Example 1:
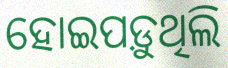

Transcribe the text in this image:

ହୋଇପଡ଼ୁଥିଲି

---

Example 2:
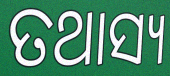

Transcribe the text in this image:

ତଥାସ୍ୟ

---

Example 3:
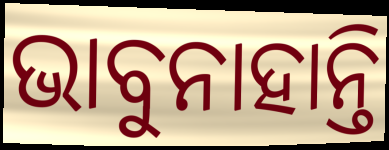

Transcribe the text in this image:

ଭାବୁନାହାନ୍ତି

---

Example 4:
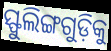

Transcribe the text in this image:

ସ୍ଫୁଲିଙ୍ଗଗୁଡ଼ିକୁ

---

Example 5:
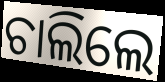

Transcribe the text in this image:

ଚାଲିଲେ